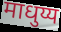
माधुय्य